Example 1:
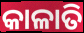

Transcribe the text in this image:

କାଳାତି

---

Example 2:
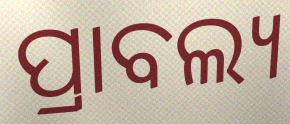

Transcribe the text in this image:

ପ୍ରାବଲ୍ୟ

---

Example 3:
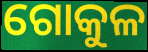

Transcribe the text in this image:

ଗୋକୁଳ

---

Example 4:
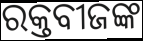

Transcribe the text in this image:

ରକ୍ତବୀଜଙ୍କ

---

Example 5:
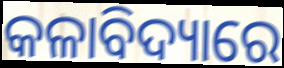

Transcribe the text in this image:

କଳାବିଦ୍ୟାରେ